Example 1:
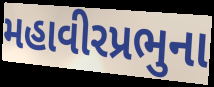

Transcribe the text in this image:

મહાવીરપ્રભુના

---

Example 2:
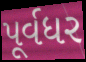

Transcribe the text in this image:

પૂર્વધર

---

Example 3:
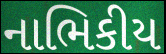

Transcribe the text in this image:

નાભિકીય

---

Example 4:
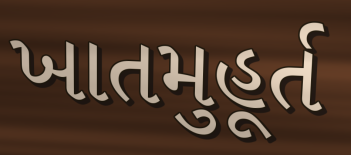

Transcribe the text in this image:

ખાતમુહૂર્ત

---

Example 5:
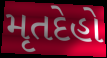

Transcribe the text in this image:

મૃતદેહો